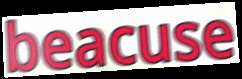
beacuse